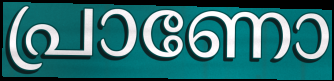
പ്രാണോ